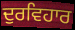
ਦੁਰਵਿਹਾਰ